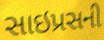
સાઇપ્રસની